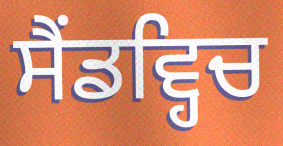
ਸੈਂਡਵ੍ਹਿਚ